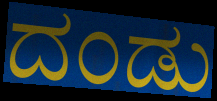
ದಂಡು